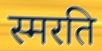
स्मरति